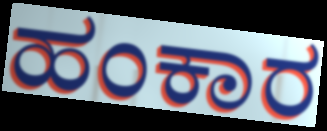
ಹಂಕಾರ